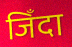
जिँदा